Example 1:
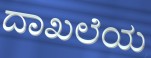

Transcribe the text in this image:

ದಾಖಲೆಯ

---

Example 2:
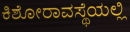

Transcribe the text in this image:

ಕಿಶೋರಾವಸ್ಥೆಯಲ್ಲಿ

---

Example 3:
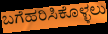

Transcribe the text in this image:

ಬಗೆಹರಿಸಿಕೊಳ್ಳಲು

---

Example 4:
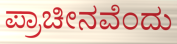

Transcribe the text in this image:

ಪ್ರಾಚೀನವೆಂದು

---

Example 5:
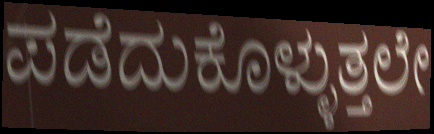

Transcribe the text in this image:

ಪಡೆದುಕೊಳ್ಳುತ್ತಲೇ